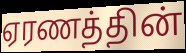
ஏரணத்தின்